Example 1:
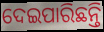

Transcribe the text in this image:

ଦେଇପାରିଛନ୍ତି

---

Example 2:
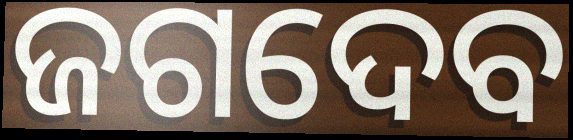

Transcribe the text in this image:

ଜଗଦେବ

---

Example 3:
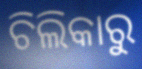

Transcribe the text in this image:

ଚିଲିକାରୁ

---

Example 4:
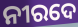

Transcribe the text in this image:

ନୀରଦେ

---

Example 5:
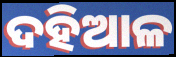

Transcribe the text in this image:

ଦହିଆଳ